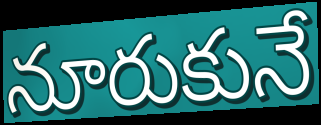
నూరుకునే